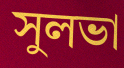
সুলভা